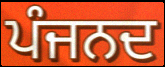
ਪੰਜਨਦ